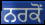
ਨਰਕੋਂ